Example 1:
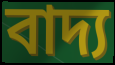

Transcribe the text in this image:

বাদ্য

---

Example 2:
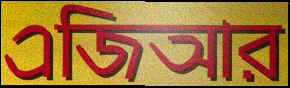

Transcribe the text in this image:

এজিআর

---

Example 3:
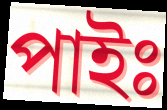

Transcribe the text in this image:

পাইঃ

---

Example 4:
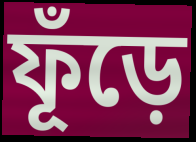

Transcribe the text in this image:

ফূঁড়ে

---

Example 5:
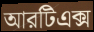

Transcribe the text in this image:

আরটিএক্স